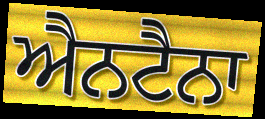
ਐਨਟੈਨਾ